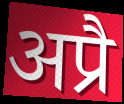
अप्रै